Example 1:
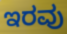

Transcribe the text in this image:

ಇರವು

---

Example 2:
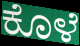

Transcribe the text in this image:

ಕೊಳೆ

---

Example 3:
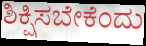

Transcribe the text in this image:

ಶಿಕ್ಷಿಸಬೇಕೆಂದು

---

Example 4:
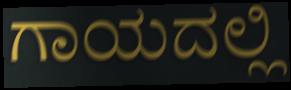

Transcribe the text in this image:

ಗಾಯದಲ್ಲಿ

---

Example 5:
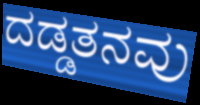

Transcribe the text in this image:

ದಡ್ಡತನವು